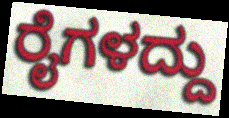
ರೈಗಳದ್ದು